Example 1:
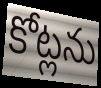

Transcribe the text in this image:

కోట్లను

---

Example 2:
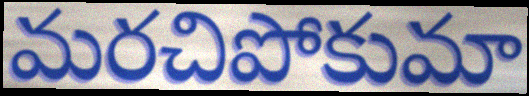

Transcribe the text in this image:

మరచిపోకుమా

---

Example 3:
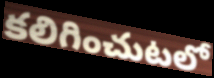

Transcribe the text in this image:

కలిగించుటలో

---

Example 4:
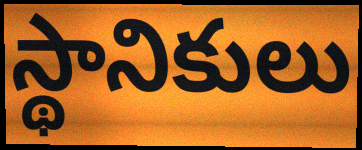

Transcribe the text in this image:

స్థానికులు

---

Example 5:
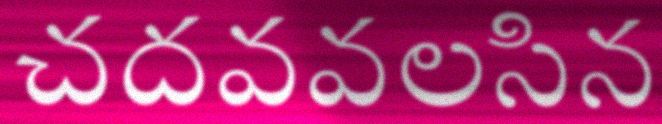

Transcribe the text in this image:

చదవవలసిన